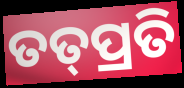
ତତ୍‌ପ୍ରତି